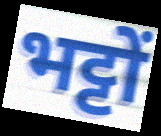
भट्टों